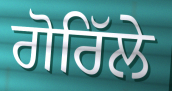
ਗੋਰਿੱਲੇ